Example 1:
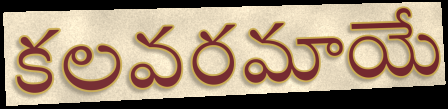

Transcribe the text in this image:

కలవరమాయే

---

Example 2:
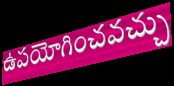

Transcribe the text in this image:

ఉపయోగించవచ్చు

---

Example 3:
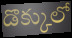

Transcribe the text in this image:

డొక్కులో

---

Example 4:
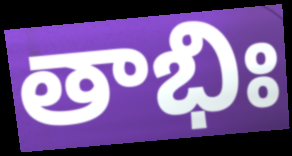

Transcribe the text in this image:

తాభిః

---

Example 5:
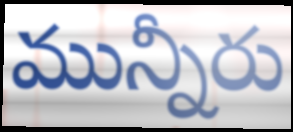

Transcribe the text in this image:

మున్నీరు